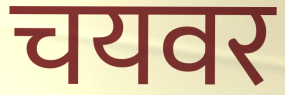
चयवर